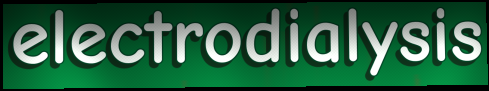
electrodialysis